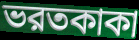
ভরতকাকা